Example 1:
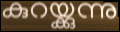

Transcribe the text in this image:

കുറയ്ക്കുന്നു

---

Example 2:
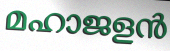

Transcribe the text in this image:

മഹാജളൻ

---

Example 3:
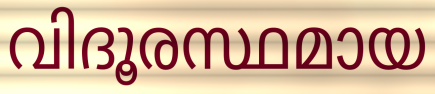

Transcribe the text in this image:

വിദൂരസ്ഥമായ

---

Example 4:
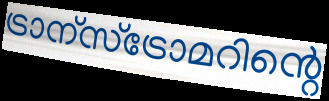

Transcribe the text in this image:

ട്രാന്സ്ട്രോമറിന്റെ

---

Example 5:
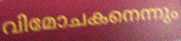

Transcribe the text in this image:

വിമോചകനെന്നും